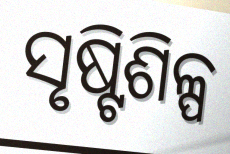
ସୃଷ୍ଟିଶିଳ୍ପ